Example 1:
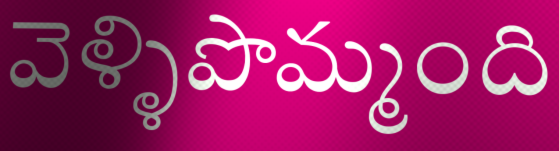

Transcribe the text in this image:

వెళ్ళిపొమ్మంది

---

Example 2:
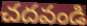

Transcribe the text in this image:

చదవండి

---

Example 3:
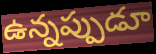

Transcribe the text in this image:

ఉన్నప్పుడూ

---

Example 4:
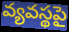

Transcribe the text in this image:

వ్యవస్థపై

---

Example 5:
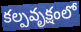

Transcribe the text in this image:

కల్పవృక్షంలో